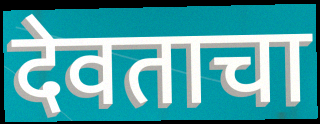
देवताचा